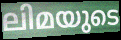
ലിമയുടെ